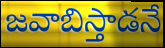
జవాబిస్తాడనే